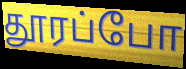
தூரப்போ